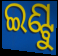
ଇଣ୍ଟୁ